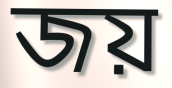
জয়